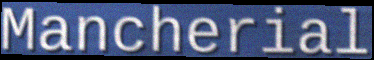
Mancherial